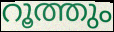
റൂത്തും